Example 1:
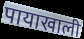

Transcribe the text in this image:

पायाखाली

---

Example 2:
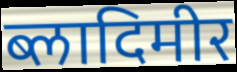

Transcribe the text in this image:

ब्लादिमीर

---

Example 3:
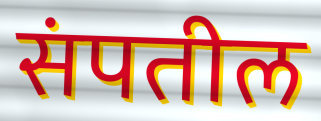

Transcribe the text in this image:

संपतील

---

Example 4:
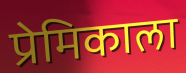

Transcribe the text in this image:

प्रेमिकाला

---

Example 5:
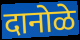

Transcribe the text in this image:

दानोळे